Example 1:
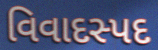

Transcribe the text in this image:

વિવાદસ્પદ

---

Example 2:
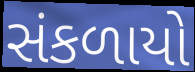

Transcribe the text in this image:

સંકળાયો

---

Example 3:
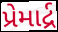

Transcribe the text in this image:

પ્રેમાર્દ્ર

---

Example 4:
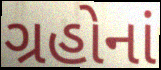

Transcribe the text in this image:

ગ્રહોનાં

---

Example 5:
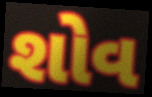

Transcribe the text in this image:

શોવ